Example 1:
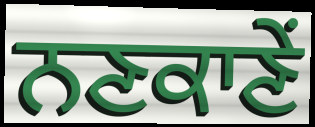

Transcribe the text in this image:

ਨਣਕਾਣੇਂ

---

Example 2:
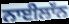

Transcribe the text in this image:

ਨਾਈਲਾੱਨ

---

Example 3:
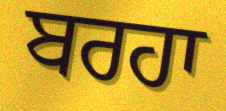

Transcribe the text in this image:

ਬਰਹਾ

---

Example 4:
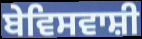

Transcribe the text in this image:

ਬੇਵਿਸਵਾਸ਼ੀ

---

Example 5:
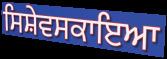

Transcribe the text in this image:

ਸਿਸ਼ੇਵਸਕਾਇਆ